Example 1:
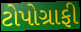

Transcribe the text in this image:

ટોપોગ્રાફી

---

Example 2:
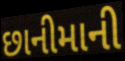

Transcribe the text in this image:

છાનીમાની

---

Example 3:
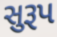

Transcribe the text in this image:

સુરૂપ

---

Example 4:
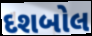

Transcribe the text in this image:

દશબોલ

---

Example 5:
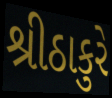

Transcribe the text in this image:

શ્રીઠાકુરે